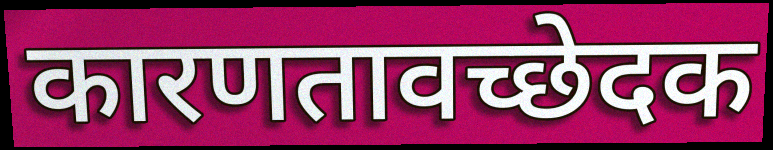
कारणतावच्छेदक